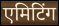
एमिटिंग